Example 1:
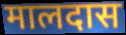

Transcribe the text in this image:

मालदास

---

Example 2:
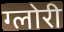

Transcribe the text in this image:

ग्लोरी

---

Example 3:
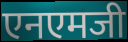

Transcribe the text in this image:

एनएमजी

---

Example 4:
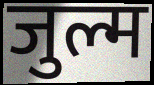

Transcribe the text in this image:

जुल्म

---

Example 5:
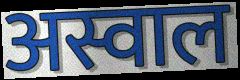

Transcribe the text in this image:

अस्वाल